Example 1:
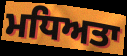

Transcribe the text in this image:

ਮਧਿਅਤਾ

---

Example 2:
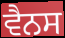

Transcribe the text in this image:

ਵੈਨਸ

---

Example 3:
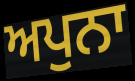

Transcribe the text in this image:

ਅਪੁਨਾ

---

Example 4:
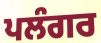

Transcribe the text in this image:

ਪਲੰਗਰ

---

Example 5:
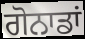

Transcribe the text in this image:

ਗੋਨਾਡਾਂ